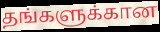
தங்களுக்கான